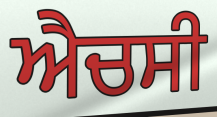
ਐਚਸੀ